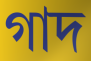
গাদ